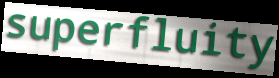
superfluity